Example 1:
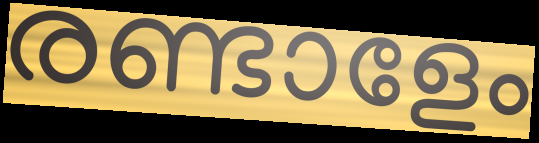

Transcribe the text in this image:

രണ്ടാളേം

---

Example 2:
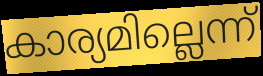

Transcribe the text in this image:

കാര്യമില്ലെന്ന്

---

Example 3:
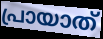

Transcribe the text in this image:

പ്രായാത്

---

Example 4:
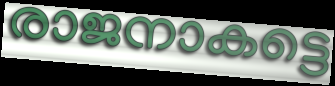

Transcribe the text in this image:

രാജനാകട്ടെ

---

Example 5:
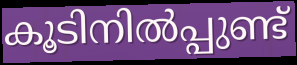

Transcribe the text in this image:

കൂടിനിൽപ്പുണ്ട്